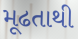
મૂઢતાથી